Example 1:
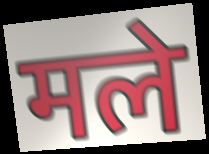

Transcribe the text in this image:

मले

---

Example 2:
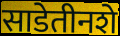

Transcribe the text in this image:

साडेतीनशे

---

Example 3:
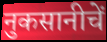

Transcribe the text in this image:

नुकसानीचें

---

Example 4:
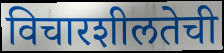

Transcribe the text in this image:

विचारशीलतेची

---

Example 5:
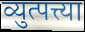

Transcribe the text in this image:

व्युत्पत्त्या